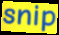
snip